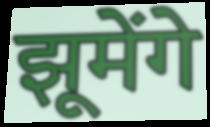
झूमेंगे